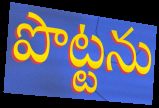
పొట్టను